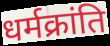
धर्मक्रांति